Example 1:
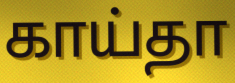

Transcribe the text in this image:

காய்தா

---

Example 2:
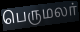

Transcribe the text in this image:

பெருமலர்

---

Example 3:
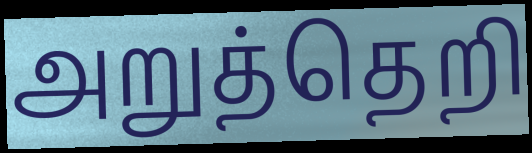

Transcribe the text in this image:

அறுத்தெறி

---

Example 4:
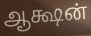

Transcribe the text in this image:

ஆக்ஷன்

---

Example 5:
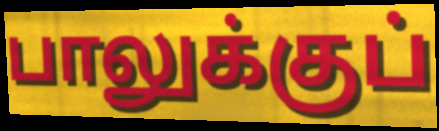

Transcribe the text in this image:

பாலுக்குப்